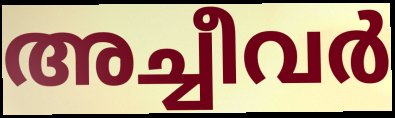
അച്ചീവർ